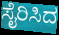
ಸೈರಿಸಿದ